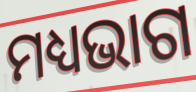
ମଧ୍ୟଭାଗ